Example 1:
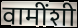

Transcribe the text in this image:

वामींशी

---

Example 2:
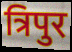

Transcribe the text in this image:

त्रिपुर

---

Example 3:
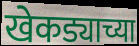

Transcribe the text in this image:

खेकड्याच्या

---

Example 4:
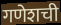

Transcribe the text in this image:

गणेशची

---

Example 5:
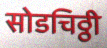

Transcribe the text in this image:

सोडचिठ्ठी